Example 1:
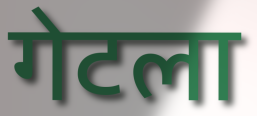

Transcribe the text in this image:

गेटला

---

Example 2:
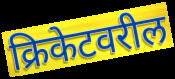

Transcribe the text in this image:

क्रिकेटवरील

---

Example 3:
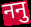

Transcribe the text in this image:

ननु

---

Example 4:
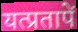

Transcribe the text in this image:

यत्प्रतापें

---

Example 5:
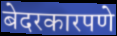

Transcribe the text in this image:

बेदरकारपणे